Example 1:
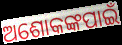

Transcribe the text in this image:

ଅଶୋକଙ୍କପାଇଁ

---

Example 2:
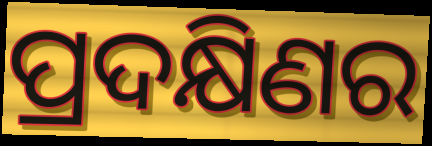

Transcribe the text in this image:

ପ୍ରଦକ୍ଷିଣର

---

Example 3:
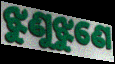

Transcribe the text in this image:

ଝୁଣୁଝୁଣେ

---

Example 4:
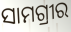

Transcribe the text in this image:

ସାମଗ୍ରୀର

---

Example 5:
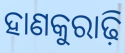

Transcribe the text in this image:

ହାଣକୁରାଢ଼ି